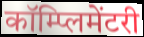
कॉम्प्लिमेंटरी